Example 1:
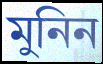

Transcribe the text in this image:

মুনিন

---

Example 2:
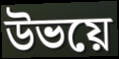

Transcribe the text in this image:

উভয়ে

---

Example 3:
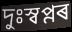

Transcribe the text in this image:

দুঃস্বপ্নৰ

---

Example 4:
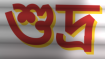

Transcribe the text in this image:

শুদ্ৰ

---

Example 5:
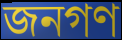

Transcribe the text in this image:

জনগণ